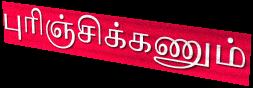
புரிஞ்சிக்கணும்